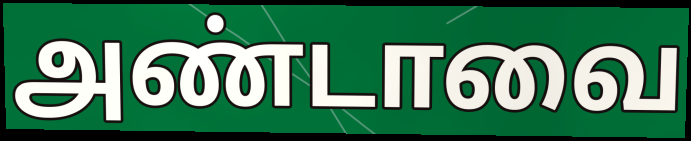
அண்டாவை